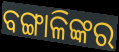
ବଙ୍ଗାଳିଙ୍କର